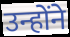
उन्‍होंने